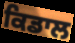
ਕਿਡਾਲ